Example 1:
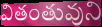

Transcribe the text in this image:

వితంతువుని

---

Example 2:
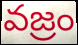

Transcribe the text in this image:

వజ్రం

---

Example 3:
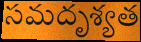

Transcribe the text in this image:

సమదృశ్యత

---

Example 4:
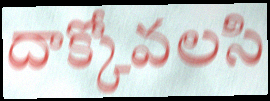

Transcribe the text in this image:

దాక్కోవలసి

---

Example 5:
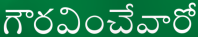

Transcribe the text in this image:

గౌరవించేవారో